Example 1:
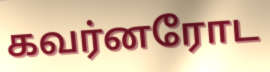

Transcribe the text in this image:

கவர்னரோட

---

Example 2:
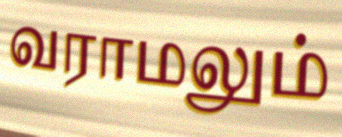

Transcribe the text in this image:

வராமலும்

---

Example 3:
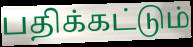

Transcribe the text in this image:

பதிக்கட்டும்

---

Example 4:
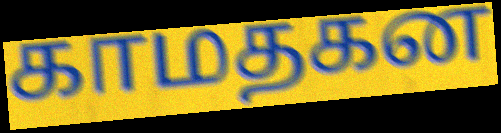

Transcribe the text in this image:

காமதகன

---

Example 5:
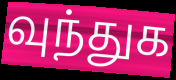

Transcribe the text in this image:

வுந்துக